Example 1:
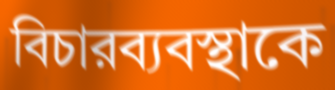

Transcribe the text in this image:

বিচারব্যবস্থাকে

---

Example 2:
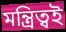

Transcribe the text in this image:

মন্ত্রিত্বই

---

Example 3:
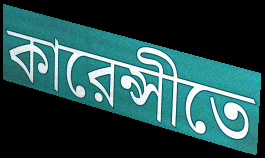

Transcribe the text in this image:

কারেন্সীতে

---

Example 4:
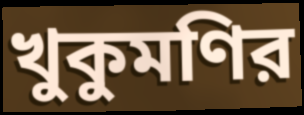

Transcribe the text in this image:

খুকুমণির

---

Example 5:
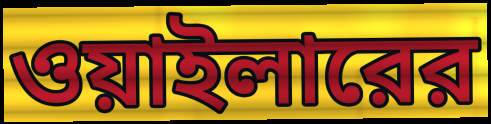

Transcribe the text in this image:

ওয়াইলারের